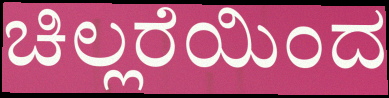
ಚಿಲ್ಲರೆಯಿಂದ